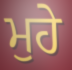
ਮੁਹੇ